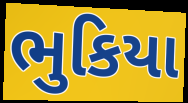
ભુકિયા